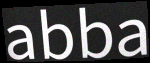
abba